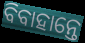
ବିବାହାନ୍ତେ